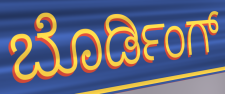
ಬೊರ್ಡಿಂಗ್